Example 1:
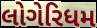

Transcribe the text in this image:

લોગેરિધમ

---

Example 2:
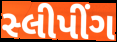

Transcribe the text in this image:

સ્લીપીંગ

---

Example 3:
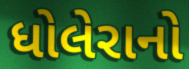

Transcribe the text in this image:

ધોલેરાનો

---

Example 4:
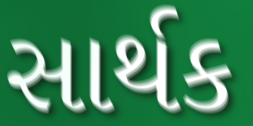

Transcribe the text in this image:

સાર્થક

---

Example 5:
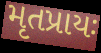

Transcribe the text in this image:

મૃતપ્રાયઃ